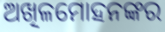
ଅଖିଳମୋହନଙ୍କର